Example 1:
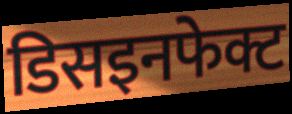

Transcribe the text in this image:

डिसइनफेक्ट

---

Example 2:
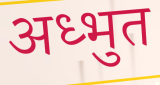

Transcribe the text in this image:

अध्भुत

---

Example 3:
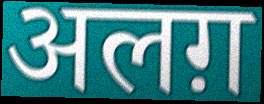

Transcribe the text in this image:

अलग़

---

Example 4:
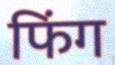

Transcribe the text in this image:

फिंग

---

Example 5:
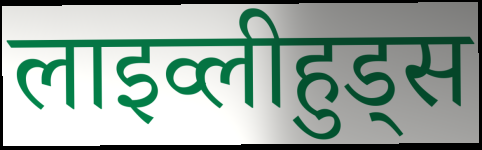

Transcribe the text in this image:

लाइव्लीहुड्स